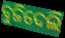
ବୁଜିଦେଲି